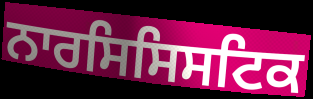
ਨਾਰਸਿਸਿਸਟਿਕ